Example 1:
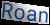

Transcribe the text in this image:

Roan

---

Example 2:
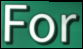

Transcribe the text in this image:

For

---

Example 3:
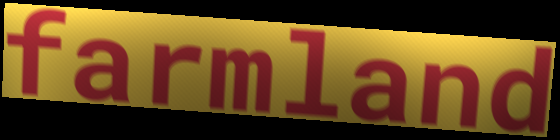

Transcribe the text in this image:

farmland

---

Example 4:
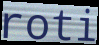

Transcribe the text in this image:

roti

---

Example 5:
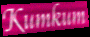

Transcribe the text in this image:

Kumkum